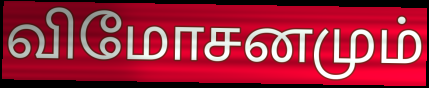
விமோசனமும்